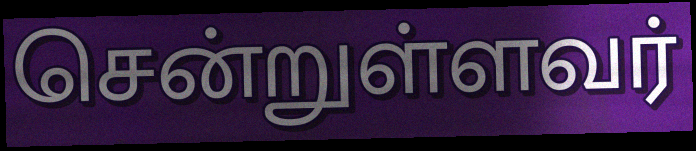
சென்றுள்ளவர்